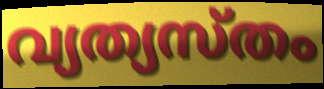
വ്യത്യസ്തം